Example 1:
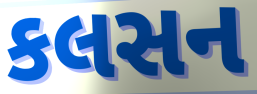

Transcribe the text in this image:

કલસન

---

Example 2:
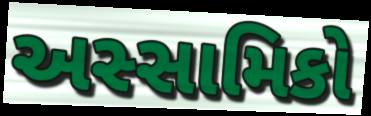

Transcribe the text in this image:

અસ્સામિકો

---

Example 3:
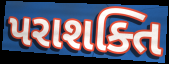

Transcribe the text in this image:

પરાશક્તિ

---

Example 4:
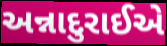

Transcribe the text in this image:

અન્નાદુરાઈએ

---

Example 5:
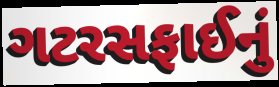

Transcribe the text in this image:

ગટરસફાઈનું